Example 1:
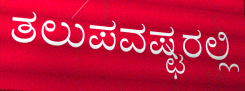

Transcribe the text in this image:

ತಲುಪವಷ್ಟರಲ್ಲಿ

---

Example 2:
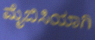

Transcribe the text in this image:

ಮೈಬಿಸಿಯಾಗಿ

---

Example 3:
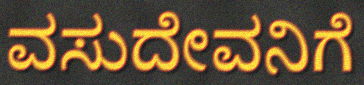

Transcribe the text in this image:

ವಸುದೇವನಿಗೆ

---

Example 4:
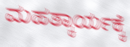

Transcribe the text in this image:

ಮಹತ್ಕಾರ್ಯಕ್ಕೆ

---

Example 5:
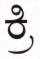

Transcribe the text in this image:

ಕ್ರಿ